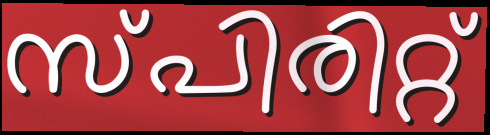
സ്പിരിറ്റ്